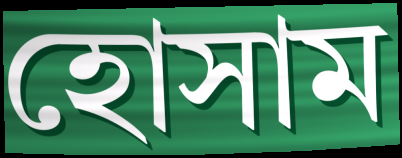
হোসাম